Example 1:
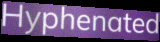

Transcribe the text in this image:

Hyphenated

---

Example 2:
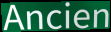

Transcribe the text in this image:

Ancien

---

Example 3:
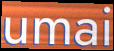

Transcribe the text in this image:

umai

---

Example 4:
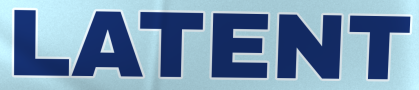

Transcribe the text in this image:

LATENT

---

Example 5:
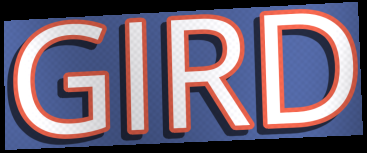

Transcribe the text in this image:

GIRD